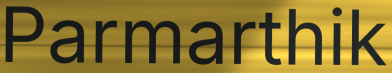
Parmarthik